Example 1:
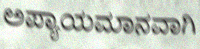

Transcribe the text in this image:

ಅಪ್ಯಾಯಮಾನವಾಗಿ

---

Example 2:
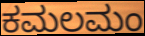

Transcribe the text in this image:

ಕಮಲಮಂ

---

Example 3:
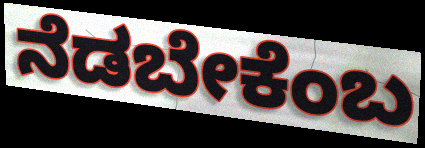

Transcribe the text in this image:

ನೆಡಬೇಕೆಂಬ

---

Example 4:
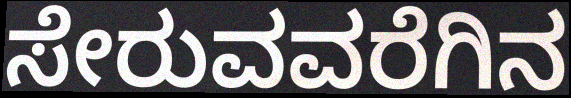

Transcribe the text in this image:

ಸೇರುವವರೆಗಿನ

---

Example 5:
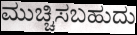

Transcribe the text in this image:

ಮುಚ್ಚಿಸಬಹುದು